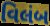
વિલંબ